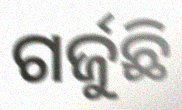
ଗର୍ଜୁଛି